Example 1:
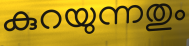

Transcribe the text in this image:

കുറയുന്നതും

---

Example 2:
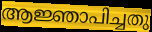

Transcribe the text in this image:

ആജ്ഞാപിച്ചതു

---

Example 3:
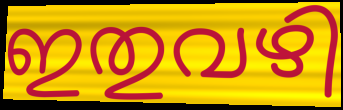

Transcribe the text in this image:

ഇതുവഴി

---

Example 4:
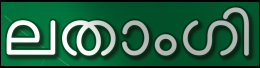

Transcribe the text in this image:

ലതാംഗി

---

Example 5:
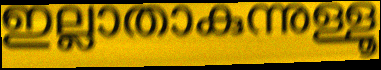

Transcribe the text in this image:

ഇല്ലാതാകുന്നുള്ളൂ